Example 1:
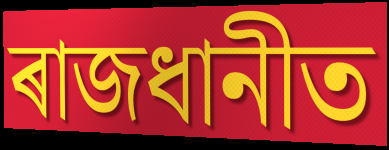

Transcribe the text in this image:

ৰাজধানীত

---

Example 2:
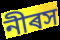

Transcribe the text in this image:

নীৰস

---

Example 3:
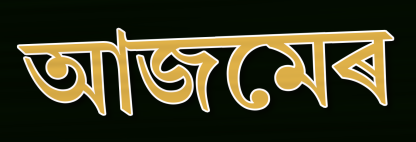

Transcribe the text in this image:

আজমেৰ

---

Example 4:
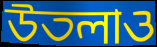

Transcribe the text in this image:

উতলাও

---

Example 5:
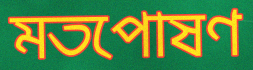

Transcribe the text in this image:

মতপোষণ